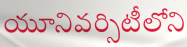
యూనివర్సిటీలోని